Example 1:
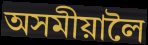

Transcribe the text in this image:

অসমীয়ালৈ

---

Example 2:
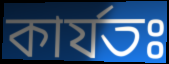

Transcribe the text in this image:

কাৰ্যতঃ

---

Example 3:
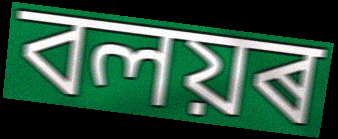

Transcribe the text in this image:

বলয়ৰ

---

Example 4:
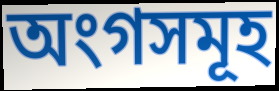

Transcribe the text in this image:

অংগসমূহ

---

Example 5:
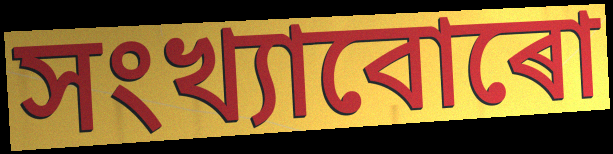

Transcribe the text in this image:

সংখ্যাবোৰো